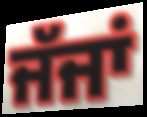
ਜੱਜਾਂ